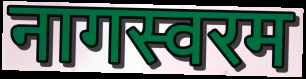
नागस्वरम